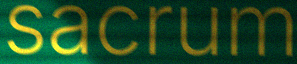
sacrum